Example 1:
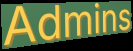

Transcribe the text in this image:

Admins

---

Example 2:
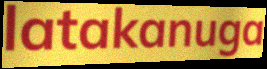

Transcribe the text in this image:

latakanuga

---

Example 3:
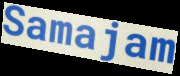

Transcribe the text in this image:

Samajam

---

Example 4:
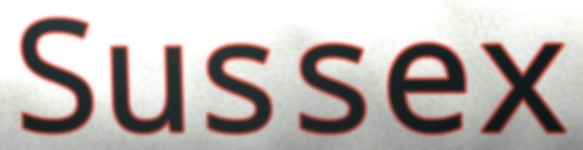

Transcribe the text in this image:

Sussex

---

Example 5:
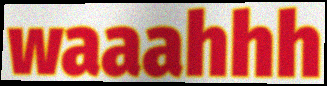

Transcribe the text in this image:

waaahhh